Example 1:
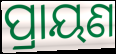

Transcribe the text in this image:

ପ୍ରାୟଣ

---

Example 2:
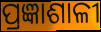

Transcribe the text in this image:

ପ୍ରଜ୍ଞାଶାଳୀ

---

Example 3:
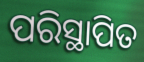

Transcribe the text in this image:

ପରିସ୍ଥାପିତ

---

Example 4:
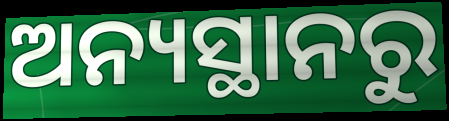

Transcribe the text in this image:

ଅନ୍ୟସ୍ଥାନରୁ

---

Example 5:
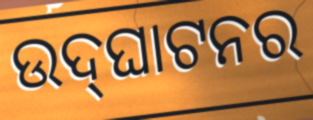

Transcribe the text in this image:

ଉଦ୍‍ଘାଟନର